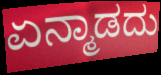
ಏನ್ಮಾಡದು